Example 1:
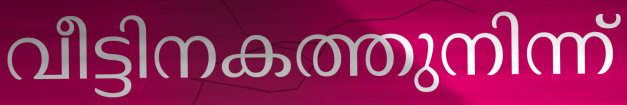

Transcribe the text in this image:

വീട്ടിനകത്തുനിന്ന്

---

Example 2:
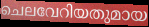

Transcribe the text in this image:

ചെലവേറിയതുമായ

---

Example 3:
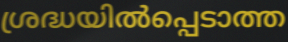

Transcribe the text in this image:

ശ്രദ്ധയിൽപ്പെടാത്ത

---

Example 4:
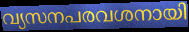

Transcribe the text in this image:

വ്യസനപരവശനായി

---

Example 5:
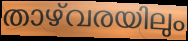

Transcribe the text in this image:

താഴ്‌വരയിലും